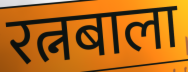
रत्नबाला